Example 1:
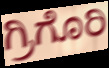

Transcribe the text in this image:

ಗ್ರಿಗೊರಿ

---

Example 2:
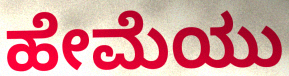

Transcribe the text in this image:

ಹೇಮೆಯು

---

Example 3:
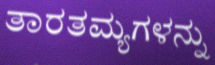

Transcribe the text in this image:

ತಾರತಮ್ಯಗಳನ್ನು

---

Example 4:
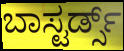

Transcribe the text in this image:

ಬಾಸ್ಟರ್ಡ್ಸ್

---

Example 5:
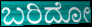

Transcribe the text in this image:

ಬರಿದೋ